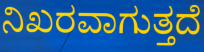
ನಿಖರವಾಗುತ್ತದೆ